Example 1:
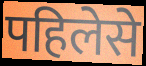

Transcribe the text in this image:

पहिलेसे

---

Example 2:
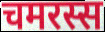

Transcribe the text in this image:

चमरस्स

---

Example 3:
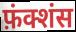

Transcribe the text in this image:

फ़ंक्शंस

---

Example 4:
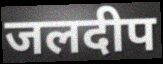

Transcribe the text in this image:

जलदीप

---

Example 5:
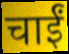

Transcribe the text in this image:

चाईं